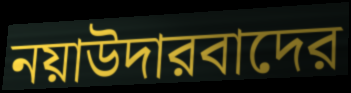
নয়াউদারবাদের